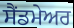
ਸੈਂਡਮੇਅਰ